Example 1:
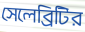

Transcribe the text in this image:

সেলেব্রিটির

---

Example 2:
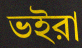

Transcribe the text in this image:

ভইরা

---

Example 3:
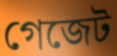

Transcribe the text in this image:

গেজেট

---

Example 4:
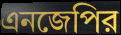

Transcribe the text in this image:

এনজেপির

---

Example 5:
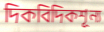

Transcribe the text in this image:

দিকবিদিকশূন্য